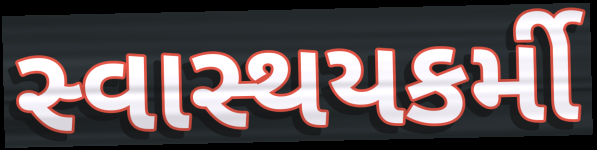
સ્વાસ્થયકર્મી